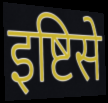
इष्टिसे